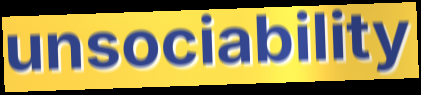
unsociability